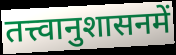
तत्त्वानुशासनमें